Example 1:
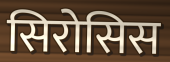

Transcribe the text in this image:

सिरोसिस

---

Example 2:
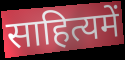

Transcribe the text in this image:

साहित्यमें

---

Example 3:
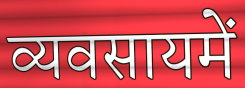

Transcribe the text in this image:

व्यवसायमें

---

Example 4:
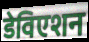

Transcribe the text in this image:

डेविएशन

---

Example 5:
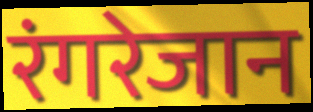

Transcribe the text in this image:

रंगरेजान